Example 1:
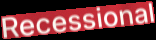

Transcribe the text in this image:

Recessional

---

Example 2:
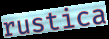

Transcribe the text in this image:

rustica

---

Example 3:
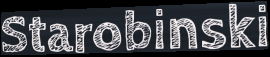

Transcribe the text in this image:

Starobinski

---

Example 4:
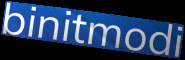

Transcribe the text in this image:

binitmodi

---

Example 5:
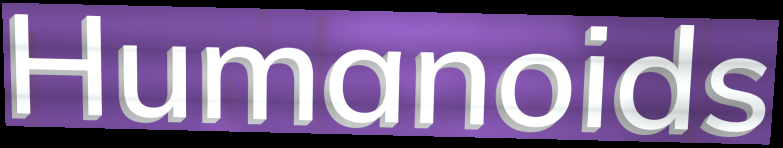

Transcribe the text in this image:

Humanoids